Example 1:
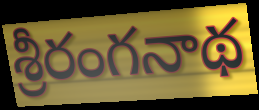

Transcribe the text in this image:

శ్రీరంగనాథ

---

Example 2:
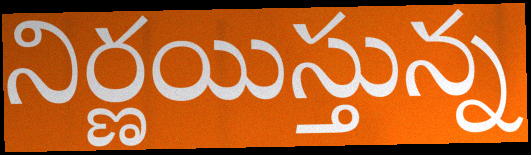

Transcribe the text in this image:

నిర్ణయిస్తున్న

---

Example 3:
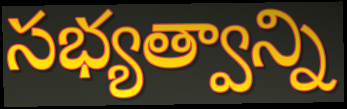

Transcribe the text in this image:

సభ్యత్వాన్ని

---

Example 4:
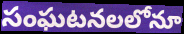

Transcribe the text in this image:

సంఘటనలలోనూ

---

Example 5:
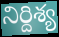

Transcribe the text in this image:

నిర్దిశ్య